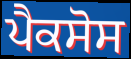
ਪੈਕਸੋਸ